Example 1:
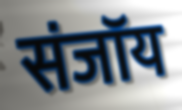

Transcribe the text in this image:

संजॉय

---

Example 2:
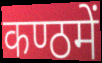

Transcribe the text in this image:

कण्ठमें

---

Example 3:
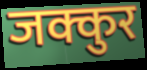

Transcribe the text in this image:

जक्कुर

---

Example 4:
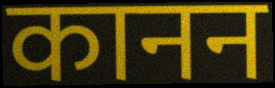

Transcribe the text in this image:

कानन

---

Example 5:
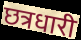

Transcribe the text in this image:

छत्रधारी